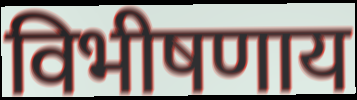
विभीषणाय